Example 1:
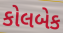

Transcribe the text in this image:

કોલબેક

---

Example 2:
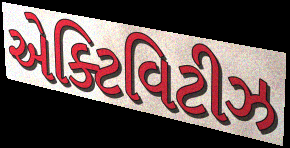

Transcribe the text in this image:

એક્ટિવિટીઝ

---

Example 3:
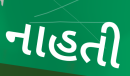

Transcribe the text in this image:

નાહતી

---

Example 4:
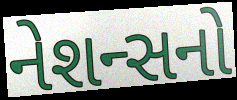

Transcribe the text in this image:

નેશન્સનો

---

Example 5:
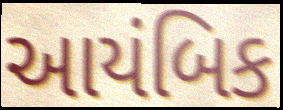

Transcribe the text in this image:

આયંબિક